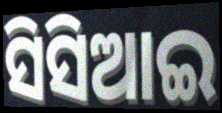
ସିସିଆଇ